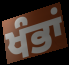
ਖੰਭਾਂ